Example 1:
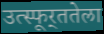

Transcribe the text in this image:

उत्स्फूर्ततेला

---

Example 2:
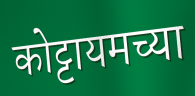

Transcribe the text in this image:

कोट्टायमच्या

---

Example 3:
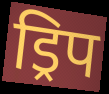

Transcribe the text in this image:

ड्रिप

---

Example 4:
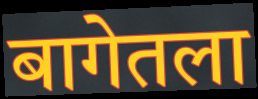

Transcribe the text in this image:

बागेतला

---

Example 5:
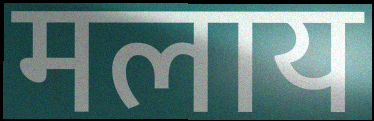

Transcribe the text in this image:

मलाय